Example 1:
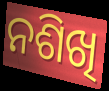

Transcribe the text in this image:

ନଶିଖି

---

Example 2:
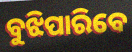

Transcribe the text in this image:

ବୁଝିପାରିବେ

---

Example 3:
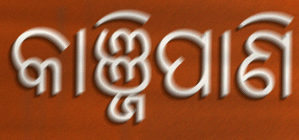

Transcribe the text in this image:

କାଞ୍ଜିପାଣି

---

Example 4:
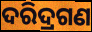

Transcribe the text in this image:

ଦରିଦ୍ରଗଣ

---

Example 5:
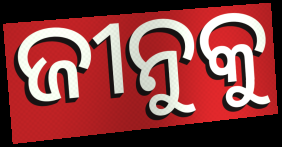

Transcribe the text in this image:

ଜୀନୁକୁ